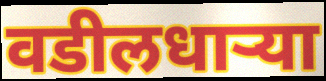
वडीलधार्‍या